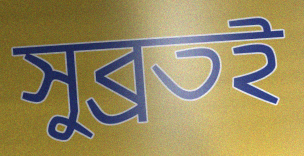
সুব্ৰতই